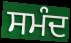
ਸਮੰਦ